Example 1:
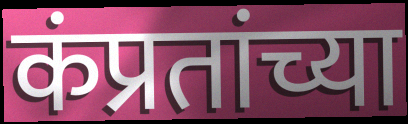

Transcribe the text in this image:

कंप्रतांच्या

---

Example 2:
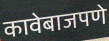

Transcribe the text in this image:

कावेबाजपणे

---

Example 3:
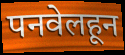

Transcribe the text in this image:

पनवेलहून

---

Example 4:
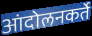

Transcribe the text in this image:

आंदोलनकर्ते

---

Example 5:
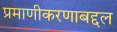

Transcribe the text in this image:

प्रमाणीकरणाबद्दल